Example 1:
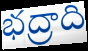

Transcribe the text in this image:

భద్రాది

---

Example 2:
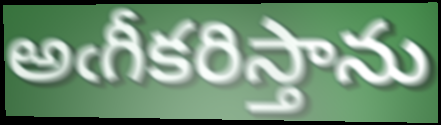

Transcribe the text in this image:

అఁగీకరిస్తాను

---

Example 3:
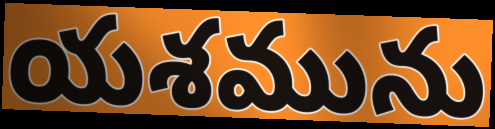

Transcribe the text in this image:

యశమును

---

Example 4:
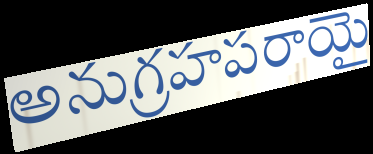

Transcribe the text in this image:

అనుగ్రహపరాయై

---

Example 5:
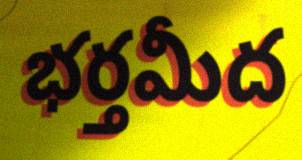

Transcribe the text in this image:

భర్తమీద